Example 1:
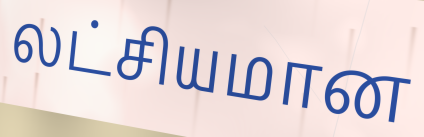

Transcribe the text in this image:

லட்சியமான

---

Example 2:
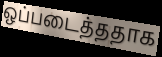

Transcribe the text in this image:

ஒப்படைத்ததாக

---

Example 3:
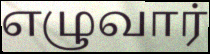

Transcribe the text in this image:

எழுவார்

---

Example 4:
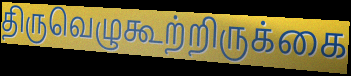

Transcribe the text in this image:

திருவெழுகூற்றிருக்கை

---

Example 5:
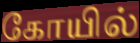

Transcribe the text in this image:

கோயில்